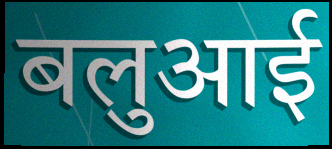
बलुआई